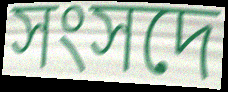
সংসদে